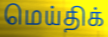
மெய்திக்